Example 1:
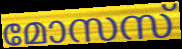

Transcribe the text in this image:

മോസസ്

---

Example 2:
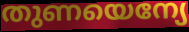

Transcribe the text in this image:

തുണയെന്യേ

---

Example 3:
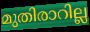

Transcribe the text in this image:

മുതിരാറില്ല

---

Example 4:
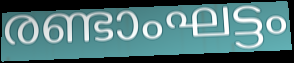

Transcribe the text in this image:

രണ്ടാംഘട്ടം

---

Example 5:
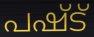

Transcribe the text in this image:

പഷ്ട്